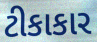
ટીકાકાર